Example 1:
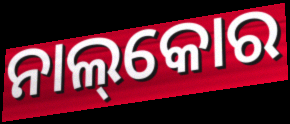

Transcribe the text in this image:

ନାଲ୍‌କୋର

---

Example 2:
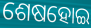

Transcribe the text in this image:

ଶେଷହୋଇ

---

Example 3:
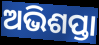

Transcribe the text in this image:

ଅଭିଶପ୍ତା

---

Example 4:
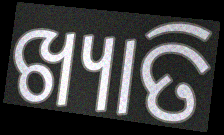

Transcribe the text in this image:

ଖ୍ଯାତି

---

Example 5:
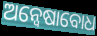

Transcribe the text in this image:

ଅନ୍ୱେଷାବୋଧ